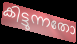
കിട്ടുന്നതോ